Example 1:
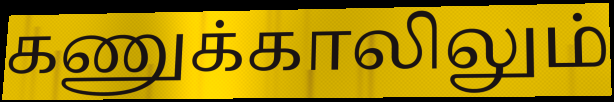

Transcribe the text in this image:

கணுக்காலிலும்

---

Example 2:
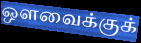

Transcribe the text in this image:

ஔவைக்குக்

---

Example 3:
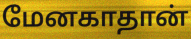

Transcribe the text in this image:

மேனகாதான்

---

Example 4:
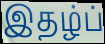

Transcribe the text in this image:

இதழ்ப்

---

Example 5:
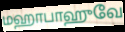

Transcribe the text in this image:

மஹாபாஹுவே